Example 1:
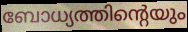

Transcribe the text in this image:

ബോധ്യത്തിന്റെയും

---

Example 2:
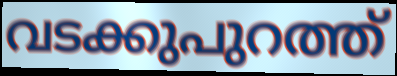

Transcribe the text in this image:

വടക്കുപുറത്ത്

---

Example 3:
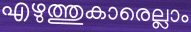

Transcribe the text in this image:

എഴുത്തുകാരെല്ലാം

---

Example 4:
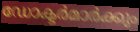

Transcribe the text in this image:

ഡോക്ടർമാർക്കും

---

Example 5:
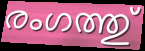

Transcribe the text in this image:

രംഗത്തു്